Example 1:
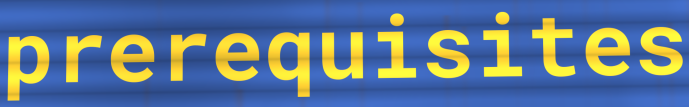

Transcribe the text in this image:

prerequisites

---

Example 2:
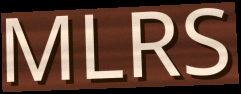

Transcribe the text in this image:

MLRS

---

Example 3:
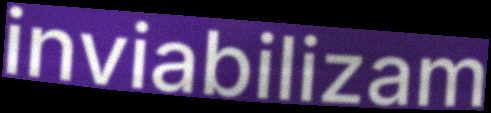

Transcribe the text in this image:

inviabilizam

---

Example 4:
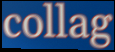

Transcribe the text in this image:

collag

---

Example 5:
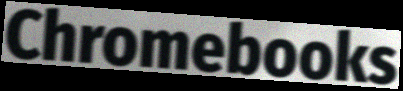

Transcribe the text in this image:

Chromebooks